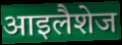
आइलैशेज